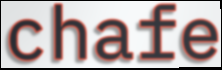
chafe